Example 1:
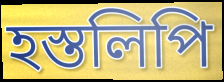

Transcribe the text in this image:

হস্তলিপি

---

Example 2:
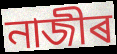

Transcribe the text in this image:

নাজীৰ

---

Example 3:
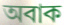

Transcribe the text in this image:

অবাক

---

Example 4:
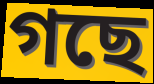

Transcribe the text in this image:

গছে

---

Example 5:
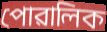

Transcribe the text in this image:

পোৱালিক